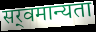
सर्वमान्यता